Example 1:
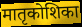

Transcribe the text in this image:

मातृकोशिका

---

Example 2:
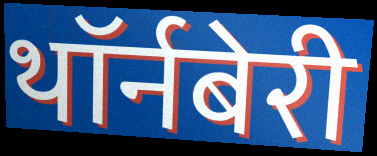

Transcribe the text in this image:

थॉर्नबेरी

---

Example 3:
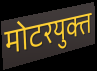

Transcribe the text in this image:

मोटरयुक्त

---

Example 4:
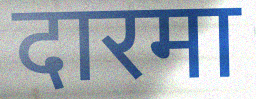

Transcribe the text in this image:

दारमा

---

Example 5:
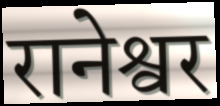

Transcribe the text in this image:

रानेश्वर